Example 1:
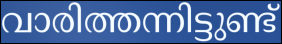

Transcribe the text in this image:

വാരിത്തന്നിട്ടുണ്ട്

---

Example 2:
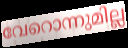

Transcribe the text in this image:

വേറൊന്നുമില്ല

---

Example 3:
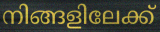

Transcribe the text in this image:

നിങ്ങളിലേക്ക്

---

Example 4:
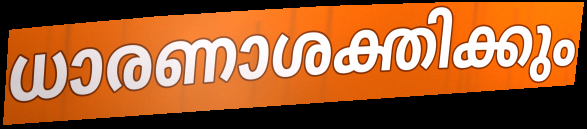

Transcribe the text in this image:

ധാരണാശക്തിക്കും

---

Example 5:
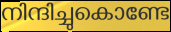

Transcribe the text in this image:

നിന്ദിച്ചുകൊണ്ടേ